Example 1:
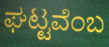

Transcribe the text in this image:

ಘಟ್ಟವೆಂಬ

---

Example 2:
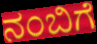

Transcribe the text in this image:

ನಂಬಿಗೆ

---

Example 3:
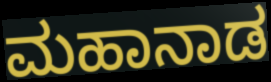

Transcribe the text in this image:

ಮಹಾನಾಡ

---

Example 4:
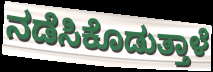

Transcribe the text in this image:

ನಡೆಸಿಕೊಡುತ್ತಾಳೆ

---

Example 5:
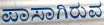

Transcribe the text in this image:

ಪಾಸಾಗಿರುವ